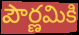
పౌర్ణమికి